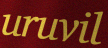
uruvil